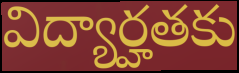
విద్యార్హతకు